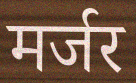
मर्जर